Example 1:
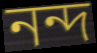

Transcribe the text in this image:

নন্দ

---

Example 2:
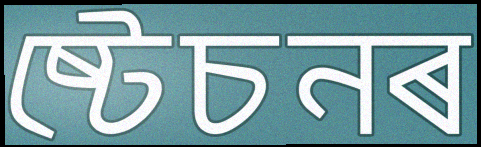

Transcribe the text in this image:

ষ্টেচনৰ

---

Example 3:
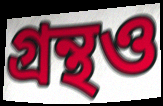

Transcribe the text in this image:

গ্ৰন্থও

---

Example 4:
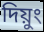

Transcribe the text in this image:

দিয়ুং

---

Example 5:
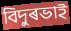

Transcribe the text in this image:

বিদুৰভাই